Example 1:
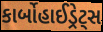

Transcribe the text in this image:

કાર્બોહાઈડ્રેટ્સ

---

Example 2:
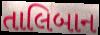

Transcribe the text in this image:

તાલિબાન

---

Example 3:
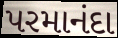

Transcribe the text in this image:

પરમાનંદા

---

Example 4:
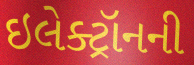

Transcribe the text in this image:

ઇલેક્ટ્રૉનની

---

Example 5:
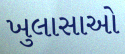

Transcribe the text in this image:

ખુલાસાઓ